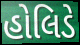
હોલિડે